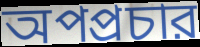
অপপ্রচার